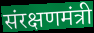
संरक्षणमंत्री